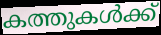
കത്തുകൾക്ക്